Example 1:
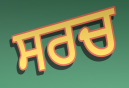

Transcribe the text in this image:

ਸਰਚ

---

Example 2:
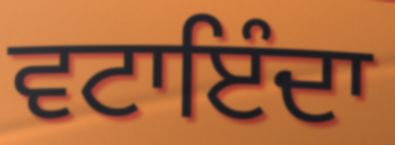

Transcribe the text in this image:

ਵਟਾਇੰਦਾ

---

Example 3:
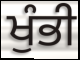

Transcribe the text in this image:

ਖੁੰਭੀ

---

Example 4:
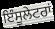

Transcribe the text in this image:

ਇੰਸੂਲੇਟਰਾਂ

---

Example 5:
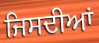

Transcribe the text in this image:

ਜਿਸਦੀਆਂ